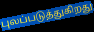
புலப்படுத்துகிறது